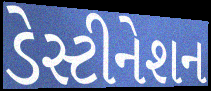
ડેસ્ટીનેશન